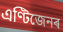
এণ্টিজেনৰ